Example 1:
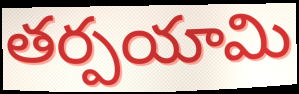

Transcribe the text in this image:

తర్పయామి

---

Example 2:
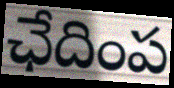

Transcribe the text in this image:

ఛేదింప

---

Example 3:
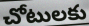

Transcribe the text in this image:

చోటులకు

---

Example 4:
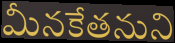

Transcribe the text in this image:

మీనకేతనుని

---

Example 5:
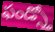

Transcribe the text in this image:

ఫండ్స్తో